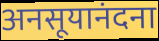
अनसूयानंदना